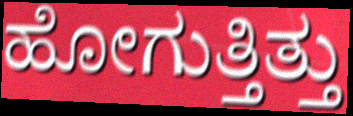
ಹೋಗುತ್ತಿತ್ತು